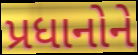
પ્રધાનોને